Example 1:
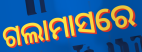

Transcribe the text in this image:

ଗଲାମାସରେ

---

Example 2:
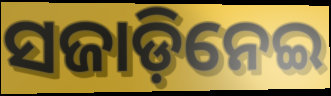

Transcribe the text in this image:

ସଜାଡ଼ିନେଇ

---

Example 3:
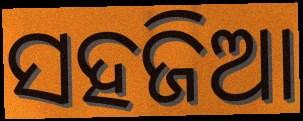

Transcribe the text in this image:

ସହଜିଆ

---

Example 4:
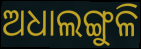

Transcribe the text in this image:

ଅଧାଲଙ୍ଗୁଳି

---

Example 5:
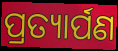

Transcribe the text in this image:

ପ୍ରତ୍ୟାର୍ପଣ